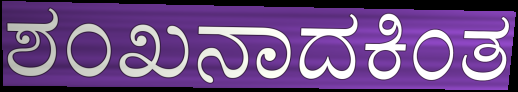
ಶಂಖನಾದಕಿಂತ